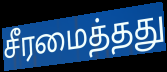
சீரமைத்தது